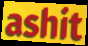
ashit